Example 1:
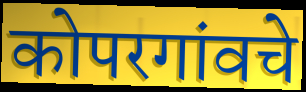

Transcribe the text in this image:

कोपरगांवचे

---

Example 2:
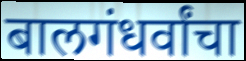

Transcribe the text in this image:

बालगंधर्वांचा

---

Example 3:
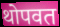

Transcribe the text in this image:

थोपवत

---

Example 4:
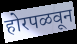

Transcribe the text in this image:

होरपळवून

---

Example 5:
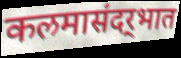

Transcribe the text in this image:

कलमासंदर्भात